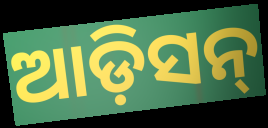
ଆଡ଼ିସନ୍